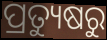
ପ୍ରତ୍ୟୁଷରୁ